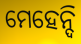
ମେହେନ୍ଦି